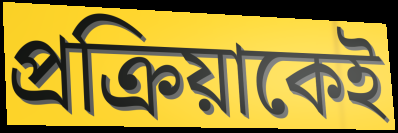
প্রক্রিয়াকেই